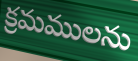
క్రమములను